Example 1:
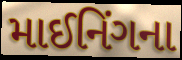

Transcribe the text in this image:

માઈનિંગના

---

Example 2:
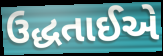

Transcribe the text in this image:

ઉદ્ધતાઈએ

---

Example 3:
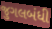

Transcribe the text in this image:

જુગલબંધી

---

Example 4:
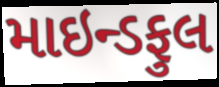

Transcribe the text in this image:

માઇન્ડફુલ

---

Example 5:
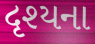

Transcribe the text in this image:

દૃશ્યના